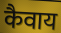
कैवाय